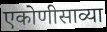
एकोणीसाव्या